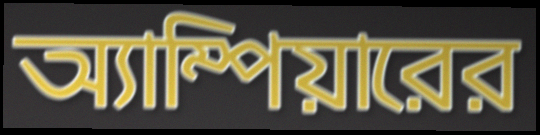
অ্যাম্পিয়ারের